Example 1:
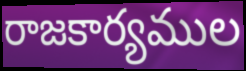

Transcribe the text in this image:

రాజకార్యముల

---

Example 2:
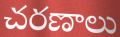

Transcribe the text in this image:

చరణాలు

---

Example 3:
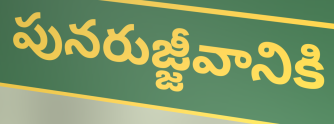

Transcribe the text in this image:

పునరుజ్జీవానికి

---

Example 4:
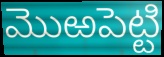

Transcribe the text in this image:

మొఱపెట్టి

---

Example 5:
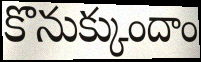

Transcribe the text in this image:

కొనుక్కుందాం